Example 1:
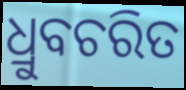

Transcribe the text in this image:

ଧ୍ରୁବଚରିତ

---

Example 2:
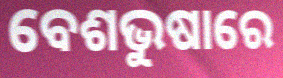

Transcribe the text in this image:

ବେଶଭୁଷାରେ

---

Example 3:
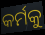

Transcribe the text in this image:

କର୍ମକୁ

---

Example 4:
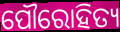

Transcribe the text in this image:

ପୌରୋହିତ୍ୟ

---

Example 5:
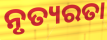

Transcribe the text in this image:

ନୃତ୍ୟରତା